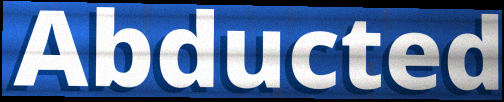
Abducted